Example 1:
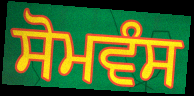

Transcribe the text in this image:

ਸੋਮਵੰਸ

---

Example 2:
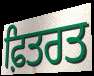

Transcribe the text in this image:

ਫ਼ਿਤਰਤ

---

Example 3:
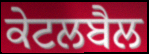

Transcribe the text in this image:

ਕੇਟਲਬੈਲ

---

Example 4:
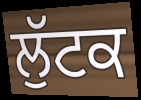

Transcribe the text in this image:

ਲੁੱਟਕ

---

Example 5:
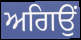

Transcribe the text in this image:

ਅਗਿਉਂ